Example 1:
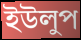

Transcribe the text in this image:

ইউলুপ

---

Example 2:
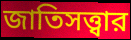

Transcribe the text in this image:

জাতিসত্ত্বার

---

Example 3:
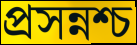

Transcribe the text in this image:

প্রসন্নশ্চ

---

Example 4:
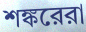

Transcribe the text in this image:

শঙ্করেরা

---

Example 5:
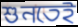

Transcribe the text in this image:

শুনতেই